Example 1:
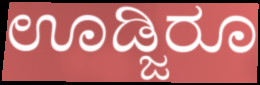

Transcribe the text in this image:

ಊಡ್ಜಿರೂ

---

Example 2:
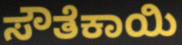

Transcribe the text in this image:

ಸೌತೆಕಾಯಿ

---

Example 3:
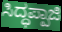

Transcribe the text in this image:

ಸಿದ್ಧಪ್ಪಾಜಿ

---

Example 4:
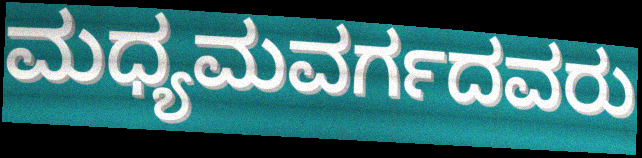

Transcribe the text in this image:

ಮಧ್ಯಮವರ್ಗದವರು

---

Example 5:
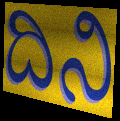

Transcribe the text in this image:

ದಿನಿ